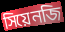
সিয়েনজি